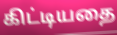
கிட்டியதை